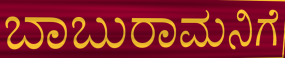
ಬಾಬುರಾಮನಿಗೆ